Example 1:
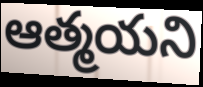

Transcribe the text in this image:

ఆత్మయని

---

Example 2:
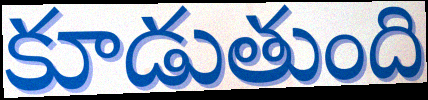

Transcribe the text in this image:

కూడుతుంది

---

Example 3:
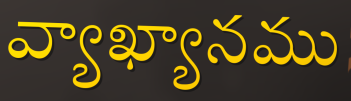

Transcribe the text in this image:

వ్యాఖ్యానము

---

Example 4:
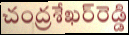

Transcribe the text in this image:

చంద్రశేఖర్‌రెడ్డి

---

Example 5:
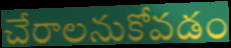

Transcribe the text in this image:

చేరాలనుకోవడం